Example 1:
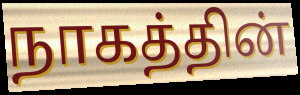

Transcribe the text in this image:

நாகத்தின்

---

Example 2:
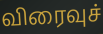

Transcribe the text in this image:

விரைவுச்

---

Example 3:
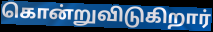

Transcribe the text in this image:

கொன்றுவிடுகிறார்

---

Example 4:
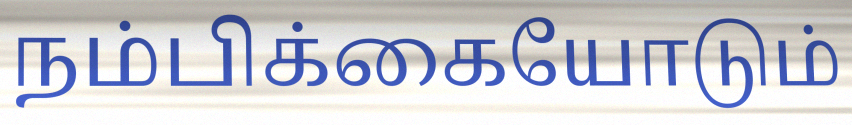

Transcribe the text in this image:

நம்பிக்கையோடும்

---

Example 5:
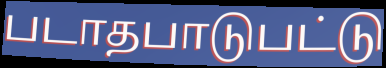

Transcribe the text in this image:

படாதபாடுபட்டு